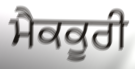
ਮੈਕਕੂਰੀ